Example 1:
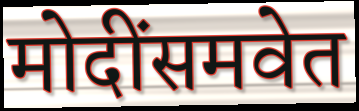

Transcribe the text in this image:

मोदींसमवेत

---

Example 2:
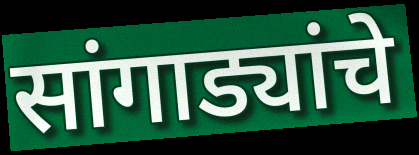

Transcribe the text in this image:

सांगाड्यांचे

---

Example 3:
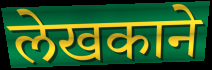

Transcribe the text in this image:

लेखकाने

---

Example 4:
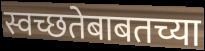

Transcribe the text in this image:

स्वच्छतेबाबतच्या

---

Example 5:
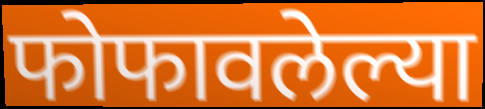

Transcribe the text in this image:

फोफावलेल्या